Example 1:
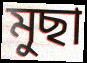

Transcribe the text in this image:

মুছা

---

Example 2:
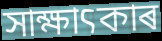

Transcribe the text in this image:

সাক্ষাৎকাৰ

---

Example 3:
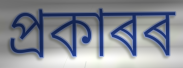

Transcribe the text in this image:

প্ৰকাৰৰ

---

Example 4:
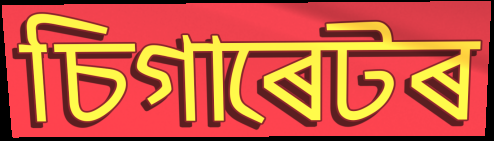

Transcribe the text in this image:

চিগাৰেটৰ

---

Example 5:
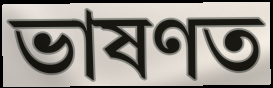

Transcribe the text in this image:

ভাষণত